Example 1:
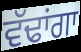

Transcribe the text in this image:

ਵੱਢਾਂਗਾ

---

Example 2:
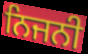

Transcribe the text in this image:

ਨਿਜਨੀ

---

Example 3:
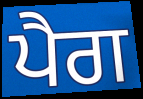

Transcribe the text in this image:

ਪੈਗ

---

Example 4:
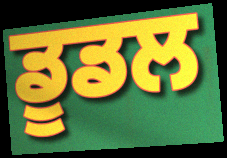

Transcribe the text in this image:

ਡੂਡਲ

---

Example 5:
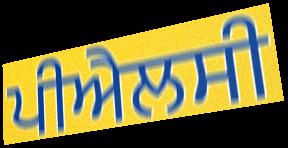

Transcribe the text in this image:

ਪੀਐਲਸੀ